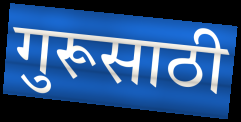
गुरूसाठी